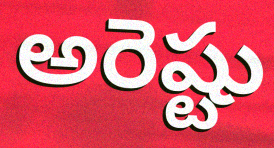
అరెష్టు